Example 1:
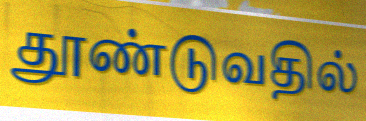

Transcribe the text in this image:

தூண்டுவதில்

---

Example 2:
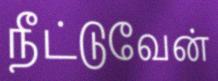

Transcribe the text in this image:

நீட்டுவேன்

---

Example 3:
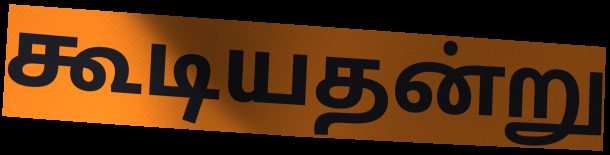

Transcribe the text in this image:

கூடியதன்று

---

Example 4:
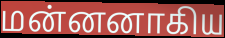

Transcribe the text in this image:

மன்னனாகிய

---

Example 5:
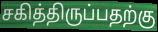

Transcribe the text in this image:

சகித்திருப்பதற்கு